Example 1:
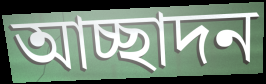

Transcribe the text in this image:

আচ্ছাদন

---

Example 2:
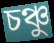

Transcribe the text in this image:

চঞ্চু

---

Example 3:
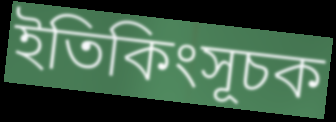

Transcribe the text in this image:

ইতিকিংসূচক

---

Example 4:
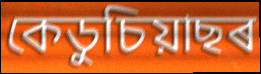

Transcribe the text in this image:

কেডুচিয়াছৰ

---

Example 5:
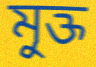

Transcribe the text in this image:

মুক্ত